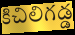
కిచిలిగడ్డ